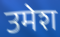
उमेश